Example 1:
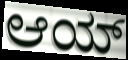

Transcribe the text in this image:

ಆಯ್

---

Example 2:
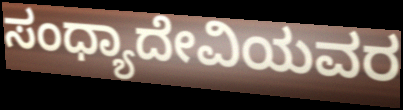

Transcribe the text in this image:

ಸಂಧ್ಯಾದೇವಿಯವರ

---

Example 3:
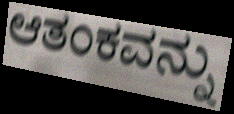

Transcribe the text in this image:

ಆತಂಕವನ್ನು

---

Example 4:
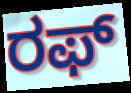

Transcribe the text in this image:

ರಫ್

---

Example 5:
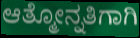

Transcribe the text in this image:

ಆತ್ಮೋನ್ನತಿಗಾಗಿ